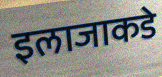
इलाजाकडे